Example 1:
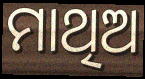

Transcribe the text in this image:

ମାଥିଅ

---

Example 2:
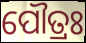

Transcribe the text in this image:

ପୌତ୍ରଃ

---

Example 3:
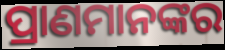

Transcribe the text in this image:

ପ୍ରାଣମାନଙ୍କର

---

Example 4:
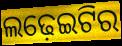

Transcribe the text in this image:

ଲଢ଼େଇଟିର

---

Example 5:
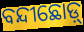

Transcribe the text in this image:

ବନ୍ଦୀଛୋଡ଼୍